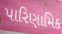
પારિણામિક